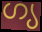
ഗ്യ